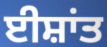
ਈਸ਼ਾਂਤ